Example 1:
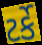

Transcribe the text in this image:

ટર્કે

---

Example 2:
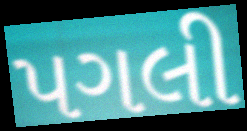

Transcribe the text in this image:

પગલી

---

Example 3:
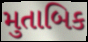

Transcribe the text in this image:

મુતાબિક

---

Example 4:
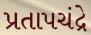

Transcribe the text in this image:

પ્રતાપચંદ્રે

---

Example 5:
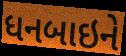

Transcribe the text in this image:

ધનબાઇને